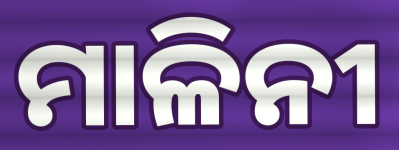
ମାଳିନୀ